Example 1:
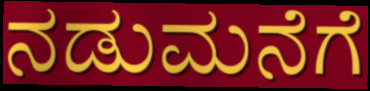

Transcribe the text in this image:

ನಡುಮನೆಗೆ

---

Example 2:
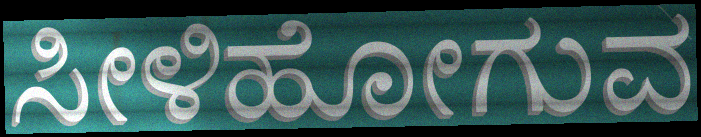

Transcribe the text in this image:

ಸೀಳಿಹೋಗುವ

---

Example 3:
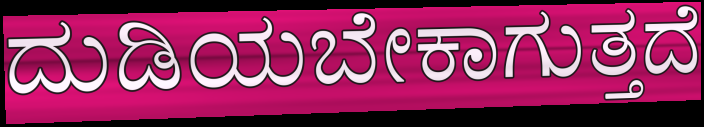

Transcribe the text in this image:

ದುಡಿಯಬೇಕಾಗುತ್ತದೆ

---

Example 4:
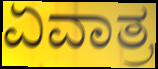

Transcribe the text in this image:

ಏವಾತ್ರ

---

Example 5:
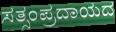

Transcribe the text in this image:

ಸತ್ಸಂಪ್ರದಾಯದ